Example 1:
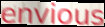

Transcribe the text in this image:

envious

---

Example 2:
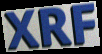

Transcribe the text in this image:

XRF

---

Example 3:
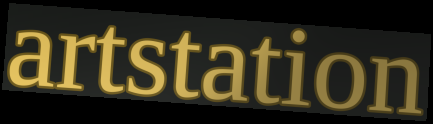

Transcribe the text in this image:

artstation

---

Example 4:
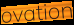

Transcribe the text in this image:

ovation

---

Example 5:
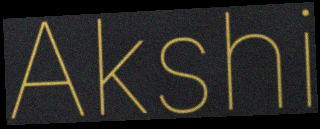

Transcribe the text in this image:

Akshi